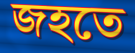
জহতে